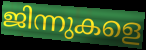
ജിന്നുകളെ